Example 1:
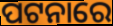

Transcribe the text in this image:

ପଟନାରେ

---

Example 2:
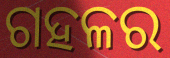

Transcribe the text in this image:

ଗହଳର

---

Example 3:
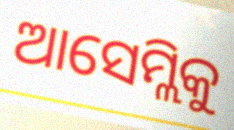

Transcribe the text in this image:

ଆସେମ୍ଲିକୁ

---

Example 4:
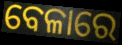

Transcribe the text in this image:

ବେଳାରେ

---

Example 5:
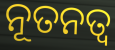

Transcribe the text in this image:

ନୂତନତ୍ୱ